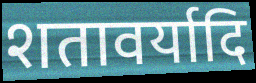
शतावर्यादि